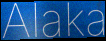
Alaka